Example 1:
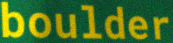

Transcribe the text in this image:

boulder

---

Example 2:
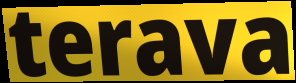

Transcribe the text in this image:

terava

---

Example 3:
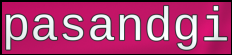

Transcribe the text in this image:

pasandgi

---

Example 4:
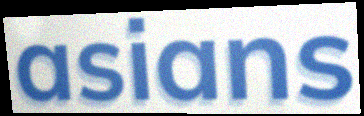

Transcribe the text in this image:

asians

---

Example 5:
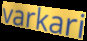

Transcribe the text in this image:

varkari